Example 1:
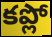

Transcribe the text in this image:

కప్లో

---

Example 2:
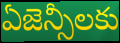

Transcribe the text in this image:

ఏజెన్సీలకు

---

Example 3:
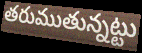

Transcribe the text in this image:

తరుముతున్నట్టు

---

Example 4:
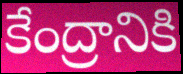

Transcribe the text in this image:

కేంద్రానికి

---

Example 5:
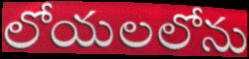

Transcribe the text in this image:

లోయలలోను